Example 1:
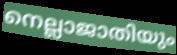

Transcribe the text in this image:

നെല്ലാജാതിയും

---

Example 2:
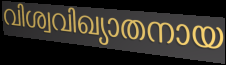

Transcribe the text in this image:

വിശ്വവിഖ്യാതനായ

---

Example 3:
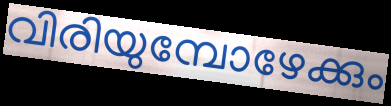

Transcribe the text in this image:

വിരിയുമ്പോഴേക്കും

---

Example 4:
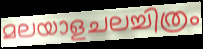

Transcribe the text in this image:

മലയാളചലച്ചിത്രം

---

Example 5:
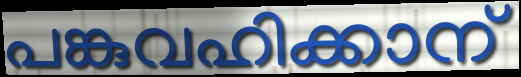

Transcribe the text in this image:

പങ്കുവഹിക്കാന്